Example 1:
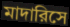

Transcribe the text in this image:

মাদারিসে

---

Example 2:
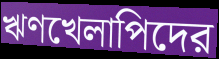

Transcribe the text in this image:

ঋণখেলাপিদের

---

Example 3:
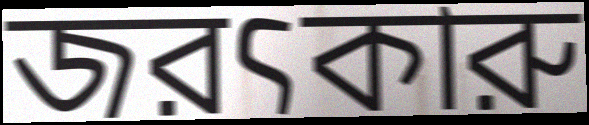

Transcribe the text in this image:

জরৎকারু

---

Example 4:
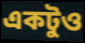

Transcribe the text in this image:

একটুও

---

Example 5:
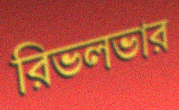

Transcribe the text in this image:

রিভলভার